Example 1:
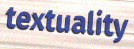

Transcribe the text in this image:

textuality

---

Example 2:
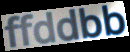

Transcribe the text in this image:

ffddbb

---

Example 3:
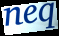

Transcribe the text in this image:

neq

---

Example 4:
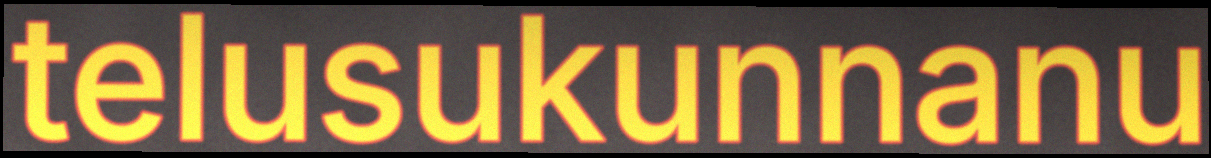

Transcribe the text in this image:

telusukunnanu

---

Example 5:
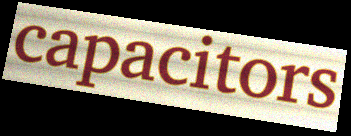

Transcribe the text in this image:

capacitors